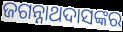
ଜଗନ୍ନାଥଦାସଙ୍କର